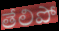
తేలిపో